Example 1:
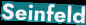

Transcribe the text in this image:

Seinfeld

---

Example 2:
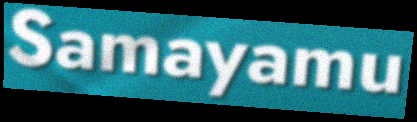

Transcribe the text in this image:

Samayamu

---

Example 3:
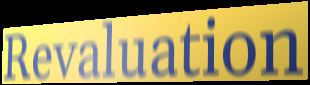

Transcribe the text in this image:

Revaluation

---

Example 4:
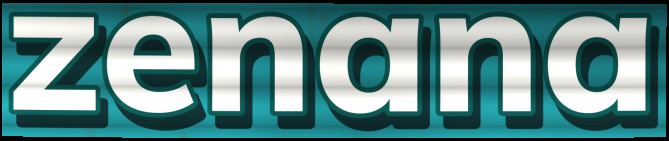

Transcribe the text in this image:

zenana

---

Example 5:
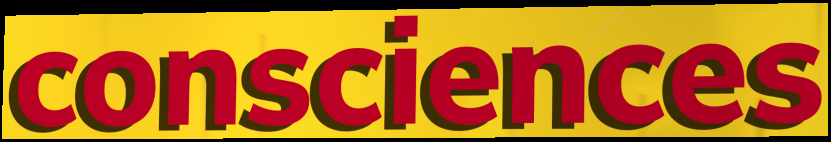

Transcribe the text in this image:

consciences